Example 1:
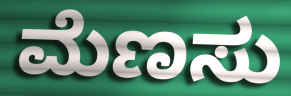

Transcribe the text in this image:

ಮೆಣಸು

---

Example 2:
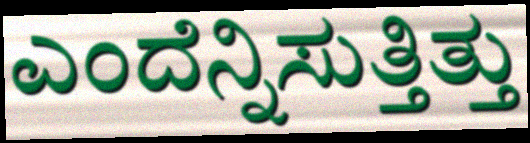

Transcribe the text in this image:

ಎಂದೆನ್ನಿಸುತ್ತಿತ್ತು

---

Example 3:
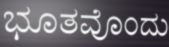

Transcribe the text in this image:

ಭೂತವೊಂದು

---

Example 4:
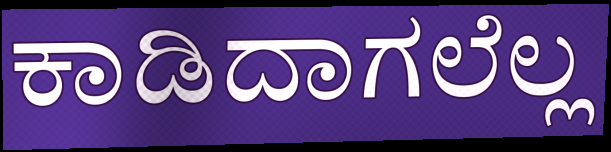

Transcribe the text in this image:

ಕಾಡಿದಾಗಲೆಲ್ಲ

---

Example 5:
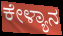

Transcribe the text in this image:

ಕೇಳ್ಯಾನ